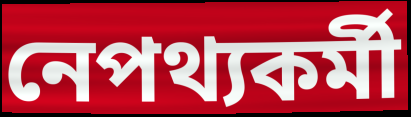
নেপথ্যকর্মী